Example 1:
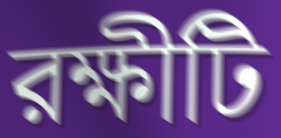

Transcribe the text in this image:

রক্ষীটি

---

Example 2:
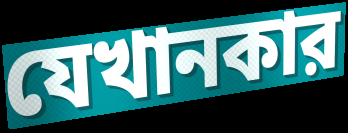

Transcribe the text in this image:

যেখানকার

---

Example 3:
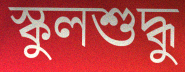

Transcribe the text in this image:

স্কুলশুদ্ধু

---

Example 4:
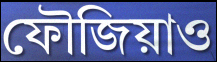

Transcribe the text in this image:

ফৌজিয়াও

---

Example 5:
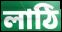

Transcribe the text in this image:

লাঠি